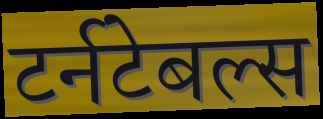
टर्नटेबल्स